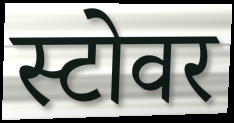
स्टोवर